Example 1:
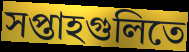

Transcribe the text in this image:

সপ্তাহগুলিতে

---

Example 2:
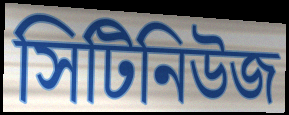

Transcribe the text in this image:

সিটিনিউজ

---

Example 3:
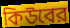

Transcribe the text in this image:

কিউবের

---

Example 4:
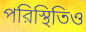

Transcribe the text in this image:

পরিস্থিতিও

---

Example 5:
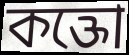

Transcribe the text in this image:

কক্তো